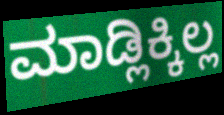
ಮಾಡ್ಲಿಕ್ಕಿಲ್ಲ